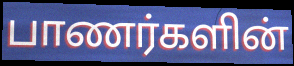
பாணர்களின்